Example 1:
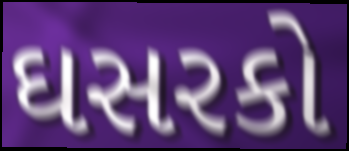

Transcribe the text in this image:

ઘસરકો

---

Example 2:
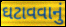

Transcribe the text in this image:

ઘટાવવાનું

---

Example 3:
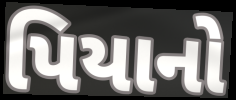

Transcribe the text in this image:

પિયાનો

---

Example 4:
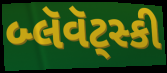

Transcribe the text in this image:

બ્લૅવૅટ્સ્કી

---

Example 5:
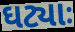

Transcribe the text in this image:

ઘટ્યાઃ